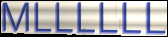
MLLLLLL